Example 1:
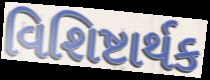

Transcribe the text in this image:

વિશિષ્ટાર્થક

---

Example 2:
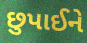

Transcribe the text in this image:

છુપાઈને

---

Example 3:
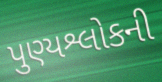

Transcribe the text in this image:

પુણ્યશ્લોકની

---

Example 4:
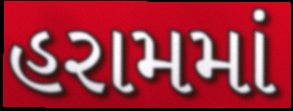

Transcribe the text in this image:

હરામમાં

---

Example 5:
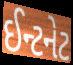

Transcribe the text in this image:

ઈન્ટનેટ